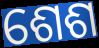
ଶେଶ